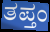
ತಪ್ತಂ